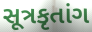
સૂત્રકૃતાંગ